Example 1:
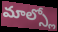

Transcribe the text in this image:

మాల్స్లో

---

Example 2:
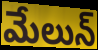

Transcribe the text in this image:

మేలున్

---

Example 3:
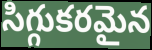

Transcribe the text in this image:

సిగ్గుకరమైన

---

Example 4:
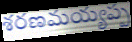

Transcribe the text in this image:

శరణమయ్యప్ప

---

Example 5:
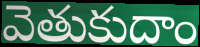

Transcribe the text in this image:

వెతుకుదాం